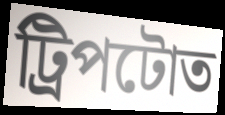
ট্ৰিপটোত